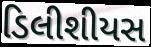
ડિલીશીયસ